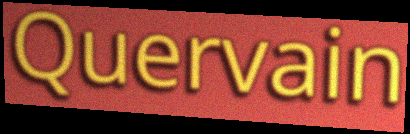
Quervain